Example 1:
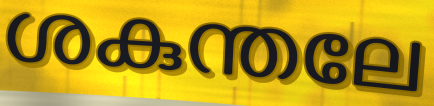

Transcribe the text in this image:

ശകുന്തലേ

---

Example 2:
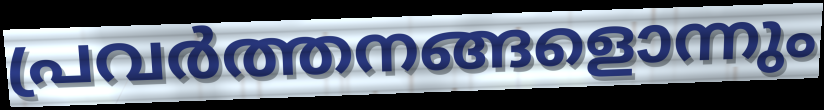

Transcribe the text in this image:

പ്രവർത്തനങ്ങളൊന്നും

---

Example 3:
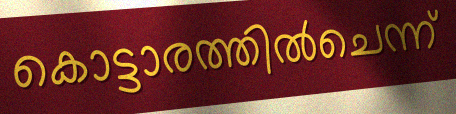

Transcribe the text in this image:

കൊട്ടാരത്തിൽചെന്ന്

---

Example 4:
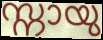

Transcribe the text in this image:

സ്നായു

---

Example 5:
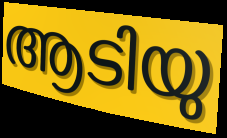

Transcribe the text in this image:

ആടിയു